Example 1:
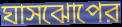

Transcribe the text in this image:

ঘাসঝোপের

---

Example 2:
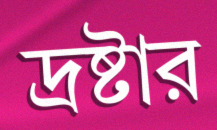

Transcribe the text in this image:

দ্রষ্টার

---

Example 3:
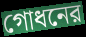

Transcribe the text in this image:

গোধনের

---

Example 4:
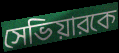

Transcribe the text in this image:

সেভিয়ারকে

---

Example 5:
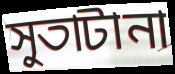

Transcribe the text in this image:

সুতাটানা